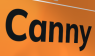
Canny